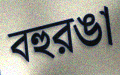
বহুরঙা